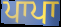
ਪਾਪਾ